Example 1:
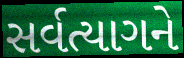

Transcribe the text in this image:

સર્વત્યાગને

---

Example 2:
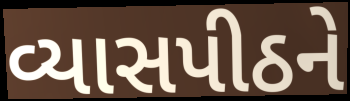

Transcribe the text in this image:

વ્યાસપીઠને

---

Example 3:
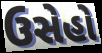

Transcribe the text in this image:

ઉસેહો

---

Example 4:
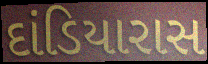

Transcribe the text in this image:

દાંડિયારાસ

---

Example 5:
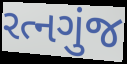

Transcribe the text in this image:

રત્નગુંજ